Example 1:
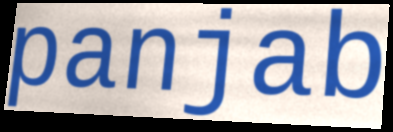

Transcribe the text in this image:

panjab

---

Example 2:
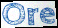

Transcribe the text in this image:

Ore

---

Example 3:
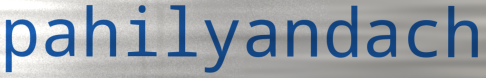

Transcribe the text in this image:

pahilyandach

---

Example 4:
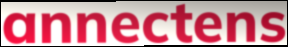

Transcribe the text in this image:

annectens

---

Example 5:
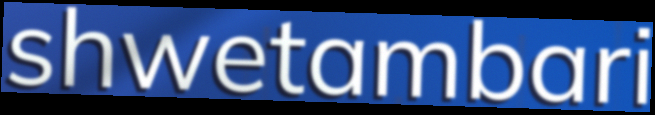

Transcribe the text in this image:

shwetambari